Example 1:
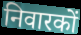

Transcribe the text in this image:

निवारकों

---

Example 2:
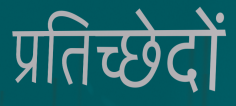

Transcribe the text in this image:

प्रतिच्छेदों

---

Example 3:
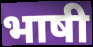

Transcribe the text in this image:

भाषी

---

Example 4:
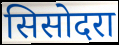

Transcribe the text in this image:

सिसोदरा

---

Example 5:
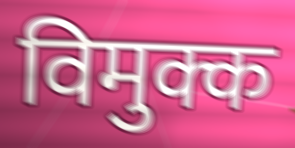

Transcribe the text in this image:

विमुक्क